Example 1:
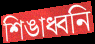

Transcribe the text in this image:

শিঙাধ্বনি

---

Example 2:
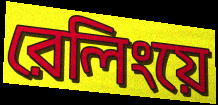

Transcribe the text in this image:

রেলিংয়ে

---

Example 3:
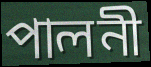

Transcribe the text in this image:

পালনী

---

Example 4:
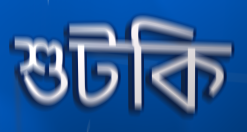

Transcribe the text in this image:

শুটকি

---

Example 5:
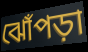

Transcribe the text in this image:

ঝোঁপড়া